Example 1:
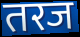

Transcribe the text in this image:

तरज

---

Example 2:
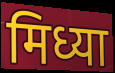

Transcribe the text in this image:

मिध्या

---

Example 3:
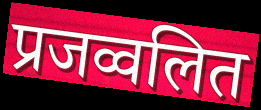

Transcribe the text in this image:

प्रजव्वलित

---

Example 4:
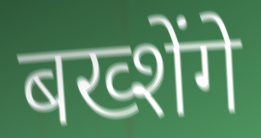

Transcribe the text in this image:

बख्शेंगे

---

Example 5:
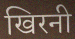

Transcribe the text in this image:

खिरनी